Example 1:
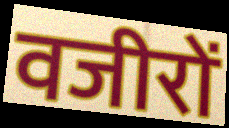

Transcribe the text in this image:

वजीरों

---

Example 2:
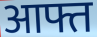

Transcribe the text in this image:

आफ्त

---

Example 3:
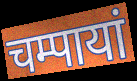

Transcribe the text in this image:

चम्पायां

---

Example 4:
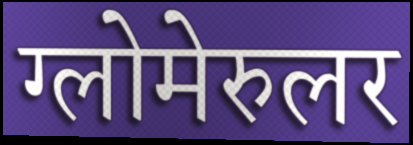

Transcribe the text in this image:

ग्लोमेरुलर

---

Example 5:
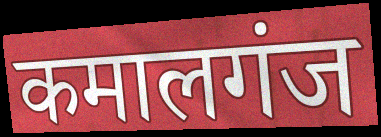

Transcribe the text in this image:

कमालगंज